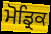
ਮੋਡ੍ਰਿਕ